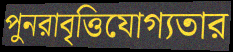
পুনরাবৃত্তিযোগ্যতার